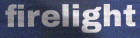
firelight